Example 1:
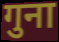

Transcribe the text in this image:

गुना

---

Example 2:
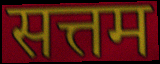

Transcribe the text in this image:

सत्तम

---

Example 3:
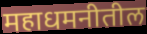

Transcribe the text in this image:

महाधमनीतील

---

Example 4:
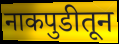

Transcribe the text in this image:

नाकपुडीतून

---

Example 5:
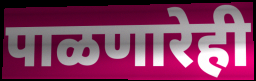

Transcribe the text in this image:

पाळणारेही